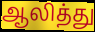
ஆலித்து